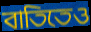
বাতিতেও